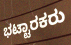
ಭಟ್ಟಾರಕರು